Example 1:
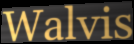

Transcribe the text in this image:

Walvis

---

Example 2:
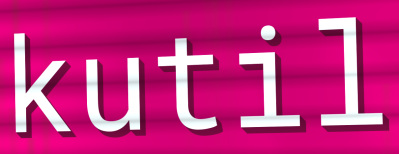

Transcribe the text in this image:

kutil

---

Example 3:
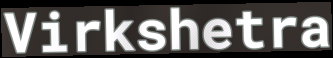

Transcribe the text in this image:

Virkshetra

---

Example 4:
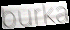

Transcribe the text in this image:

burka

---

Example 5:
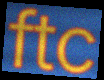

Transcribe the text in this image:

ftc